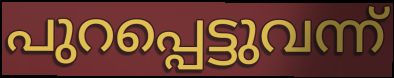
പുറപ്പെട്ടുവന്ന്